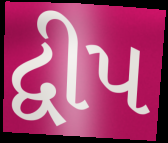
દ્વીપ